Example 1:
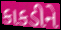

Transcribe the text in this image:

કાકડીને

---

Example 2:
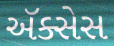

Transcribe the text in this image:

ઍક્સેસ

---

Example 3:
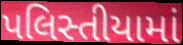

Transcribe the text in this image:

પલિસ્તીયામાં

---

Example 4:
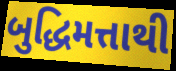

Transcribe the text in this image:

બુદ્ધિમત્તાથી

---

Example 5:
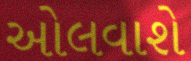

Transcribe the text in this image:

ઓલવાશે